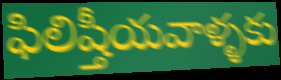
ఫిలిష్తీయవాళ్ళకు